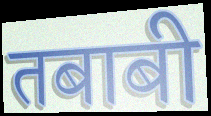
तबाबी